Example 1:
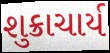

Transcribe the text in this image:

શુક્રાચાર્ય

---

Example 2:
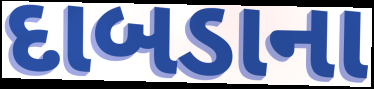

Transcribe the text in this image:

દાબડાના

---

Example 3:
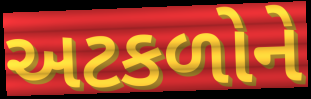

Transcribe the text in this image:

અટકળોને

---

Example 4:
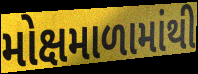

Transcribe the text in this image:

મોક્ષમાળામાંથી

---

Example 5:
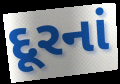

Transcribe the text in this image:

દૂરનાં